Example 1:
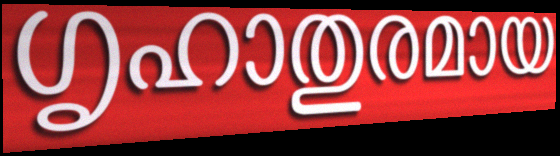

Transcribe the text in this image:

ഗൃഹാതുരമായ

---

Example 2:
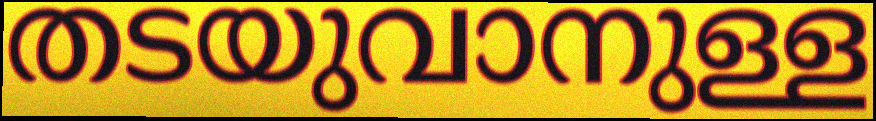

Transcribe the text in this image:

തടയുവാനുള്ള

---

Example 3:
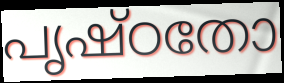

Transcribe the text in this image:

പൃഷ്ഠതോ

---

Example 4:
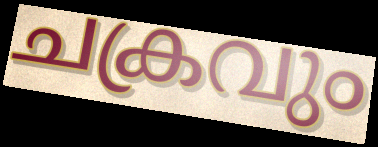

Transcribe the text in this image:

ചക്രവും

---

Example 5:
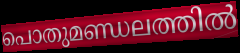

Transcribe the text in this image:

പൊതുമണ്ഡലത്തിൽ